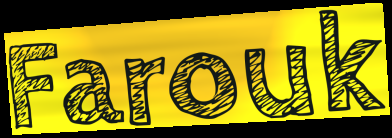
Farouk